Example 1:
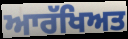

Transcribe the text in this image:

ਆਰੱਖਿਅਤ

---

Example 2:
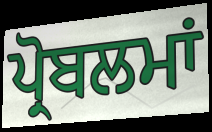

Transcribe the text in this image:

ਪ੍ਰੋਬਲਮਾਂ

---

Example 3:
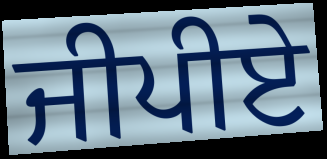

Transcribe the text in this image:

ਜੀਪੀਏ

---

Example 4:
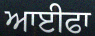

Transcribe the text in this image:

ਆਈਫਾ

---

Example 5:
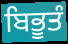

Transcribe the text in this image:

ਬਿਭੂਤੰ